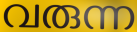
വരുന്ന